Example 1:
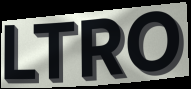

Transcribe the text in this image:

LTRO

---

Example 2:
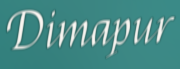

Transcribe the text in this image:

Dimapur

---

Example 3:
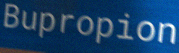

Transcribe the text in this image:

Bupropion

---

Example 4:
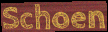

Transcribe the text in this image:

Schoen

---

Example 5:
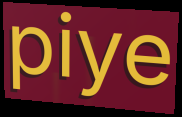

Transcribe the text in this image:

piye